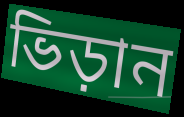
ভিড়ান